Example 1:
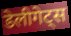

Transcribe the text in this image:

डेलीगेट्स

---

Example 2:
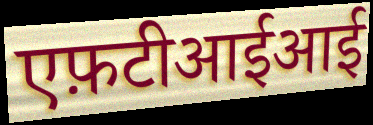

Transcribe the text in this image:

एफ़टीआईआई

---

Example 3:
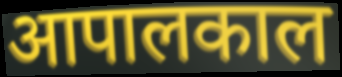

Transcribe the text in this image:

आपालकाल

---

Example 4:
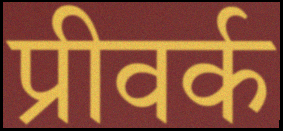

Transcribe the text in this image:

प्रीवर्क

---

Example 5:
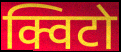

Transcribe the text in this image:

क्विटो